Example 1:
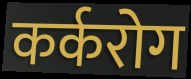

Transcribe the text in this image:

कर्करोग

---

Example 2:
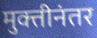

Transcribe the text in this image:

मुक्तीनंतर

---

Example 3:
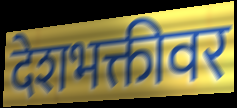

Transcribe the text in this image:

देशभक्तीवर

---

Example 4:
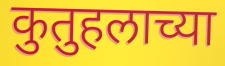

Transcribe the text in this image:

कुतुहलाच्या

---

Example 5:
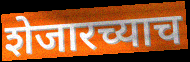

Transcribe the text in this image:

शेजारच्याच